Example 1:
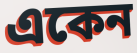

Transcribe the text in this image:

একেন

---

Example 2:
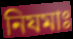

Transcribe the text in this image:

নিযমাঃ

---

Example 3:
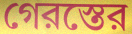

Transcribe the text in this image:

গেরস্তের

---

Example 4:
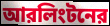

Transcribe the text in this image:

আরলিংটনের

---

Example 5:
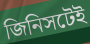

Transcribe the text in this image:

জিনিসটেই